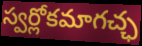
స్వర్లోకమాగచ్ఛ